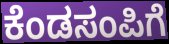
ಕೆಂಡಸಂಪಿಗೆ